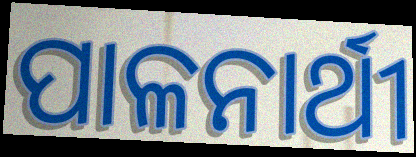
ପାଳନାର୍ଥୀ